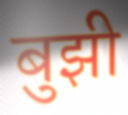
बुझी